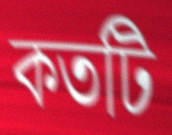
কতটি